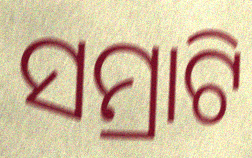
ସମ୍ରାଟି